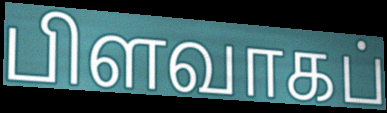
பிளவாகப்